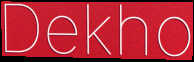
Dekho